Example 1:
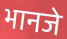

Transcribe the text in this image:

भानजे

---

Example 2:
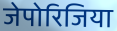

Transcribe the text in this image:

जेपोरिजिया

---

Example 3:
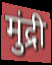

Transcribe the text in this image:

मुंद्री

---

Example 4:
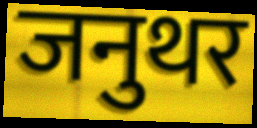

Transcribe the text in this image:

जनुथर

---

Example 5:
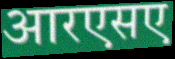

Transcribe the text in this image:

आरएसए